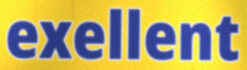
exellent